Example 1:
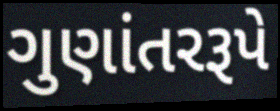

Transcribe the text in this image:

ગુણાંતરરૂપે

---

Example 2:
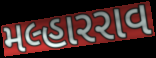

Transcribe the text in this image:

મલ્હારરાવ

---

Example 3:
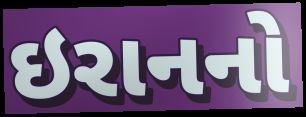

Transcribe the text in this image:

ઇરાનનો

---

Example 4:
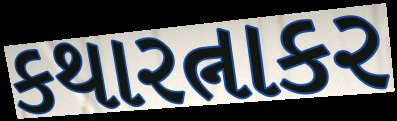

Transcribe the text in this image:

કથારત્નાકર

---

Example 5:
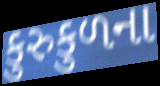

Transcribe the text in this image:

કુરુકુળના